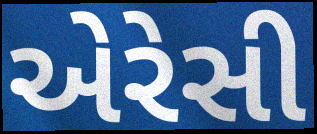
એરેસી